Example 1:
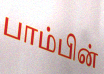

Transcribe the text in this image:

பாம்பின்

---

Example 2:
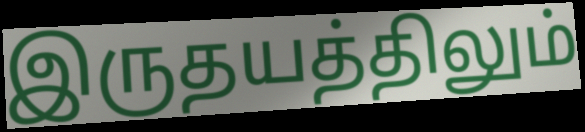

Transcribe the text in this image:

இருதயத்திலும்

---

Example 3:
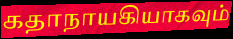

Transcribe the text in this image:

கதாநாயகியாகவும்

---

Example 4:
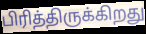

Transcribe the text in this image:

பிரித்திருக்கிறது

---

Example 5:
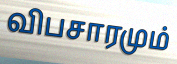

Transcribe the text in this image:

விபசாரமும்